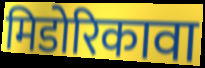
मिडोरिकावा